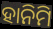
ହାନିମି